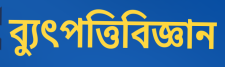
ব্যুৎপত্তিবিজ্ঞান